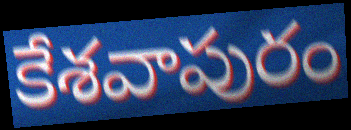
కేశవాపురం